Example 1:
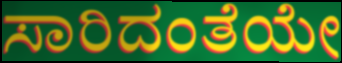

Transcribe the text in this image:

ಸಾರಿದಂತೆಯೇ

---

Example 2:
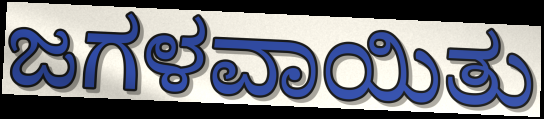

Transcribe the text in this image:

ಜಗಳವಾಯಿತು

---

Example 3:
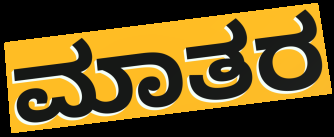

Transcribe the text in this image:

ಮಾತರ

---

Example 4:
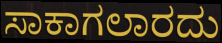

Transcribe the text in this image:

ಸಾಕಾಗಲಾರದು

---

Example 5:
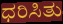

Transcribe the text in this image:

ಧರಿಸಿತು